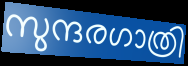
സുന്ദരഗാത്രി